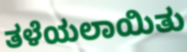
ತಳೆಯಲಾಯಿತು